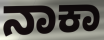
ನಾಕಾ